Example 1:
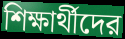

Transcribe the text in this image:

শিক্ষার্থীদের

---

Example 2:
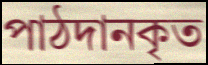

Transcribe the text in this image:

পাঠদানকৃত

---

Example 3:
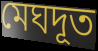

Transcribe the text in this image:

মেঘদূত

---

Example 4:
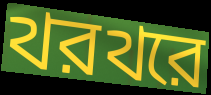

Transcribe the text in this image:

থরথরে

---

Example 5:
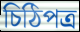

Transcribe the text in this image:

চিঠিপত্র